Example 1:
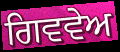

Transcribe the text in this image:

ਗਿਵਵੇਅ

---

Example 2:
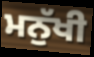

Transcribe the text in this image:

ਮਨੁੱਖੀ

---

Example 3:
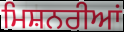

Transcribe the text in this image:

ਮਿਸ਼ਨਰੀਆਂ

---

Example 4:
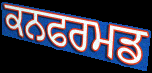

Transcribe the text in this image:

ਕਨਫਰਮਡ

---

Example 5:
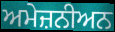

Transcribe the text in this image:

ਅਮੇਜ਼ਨੀਅਨ